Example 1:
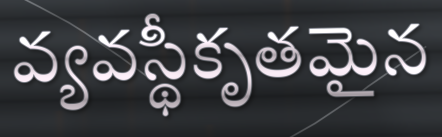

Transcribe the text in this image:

వ్యవస్థీకృతమైన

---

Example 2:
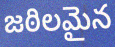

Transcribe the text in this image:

జఠిలమైన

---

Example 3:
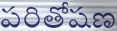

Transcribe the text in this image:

పరితోషణ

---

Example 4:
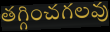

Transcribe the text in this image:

తగ్గించగలవు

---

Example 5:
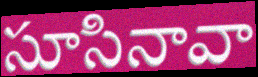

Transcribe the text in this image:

సూసినావా